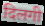
दिलगी